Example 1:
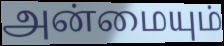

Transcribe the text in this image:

அன்மையும்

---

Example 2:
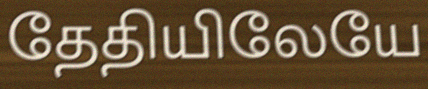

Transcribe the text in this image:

தேதியிலேயே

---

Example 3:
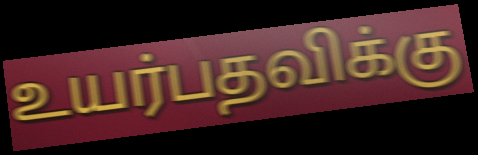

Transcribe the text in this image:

உயர்பதவிக்கு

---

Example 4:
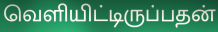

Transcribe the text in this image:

வெளியிட்டிருப்பதன்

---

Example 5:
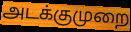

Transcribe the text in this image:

அடக்குமுறை